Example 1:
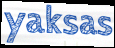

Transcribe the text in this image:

yaksas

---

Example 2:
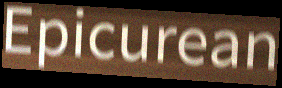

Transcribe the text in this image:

Epicurean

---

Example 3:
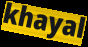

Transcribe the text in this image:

khayal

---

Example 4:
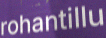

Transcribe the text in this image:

rohantillu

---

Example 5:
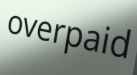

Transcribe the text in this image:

overpaid